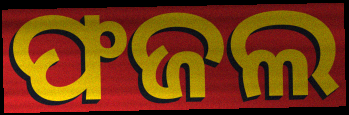
ଫଜଲ